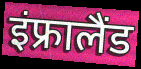
इंफ्रालैंड